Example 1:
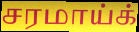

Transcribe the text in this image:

சரமாய்க்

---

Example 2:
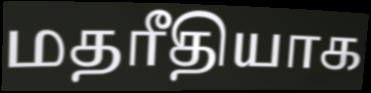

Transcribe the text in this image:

மதரீதியாக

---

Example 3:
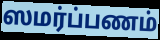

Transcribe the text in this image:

ஸமர்ப்பணம்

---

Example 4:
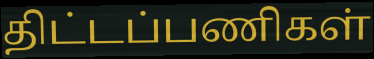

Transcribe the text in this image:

திட்டப்பணிகள்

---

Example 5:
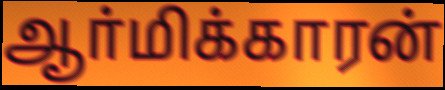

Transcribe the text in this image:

ஆர்மிக்காரன்